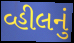
વ્હીલનું